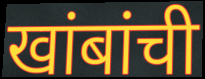
खांबांची